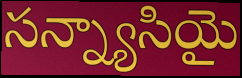
సన్న్యాసియై